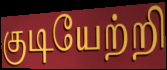
குடியேற்றி